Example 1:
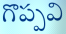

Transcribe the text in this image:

గొప్పవి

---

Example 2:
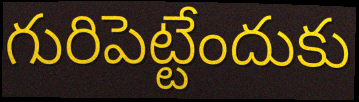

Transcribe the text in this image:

గురిపెట్టేందుకు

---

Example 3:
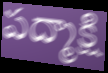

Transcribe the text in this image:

పద్మాక్షి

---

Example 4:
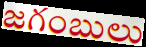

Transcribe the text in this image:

జగంబులు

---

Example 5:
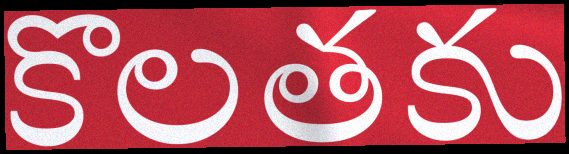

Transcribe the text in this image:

కొలతకు